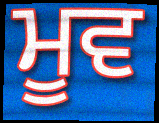
ਮੂਵ